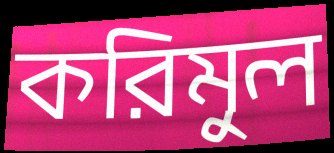
করিমুল